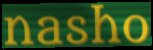
nasho